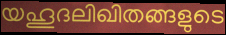
യഹൂദലിഖിതങ്ങളുടെ